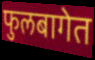
फुलबागेत